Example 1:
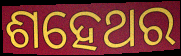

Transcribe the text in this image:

ଶହେଥର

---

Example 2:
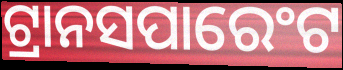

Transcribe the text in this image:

ଟ୍ରାନସପାରେଂଟ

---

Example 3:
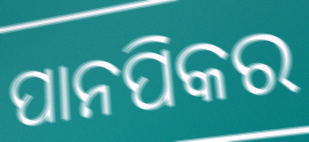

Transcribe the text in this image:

ପାନପିକର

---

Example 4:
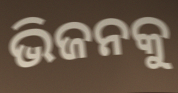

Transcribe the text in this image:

ଭିଜନକୁ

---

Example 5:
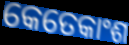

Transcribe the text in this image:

କେତେକାଂଶ